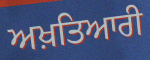
ਅਖ਼ਤਿਆਰੀ